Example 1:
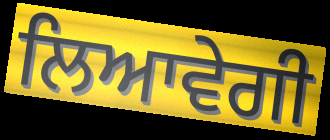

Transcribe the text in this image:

ਲਿਆਵੇਗੀ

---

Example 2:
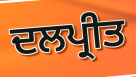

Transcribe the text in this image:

ਦਲਪ੍ਰੀਤ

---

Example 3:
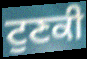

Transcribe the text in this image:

ਟੁਣਕੀ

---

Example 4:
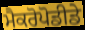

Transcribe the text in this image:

ਮੈਕਰੋਪੋਡੀਡੇ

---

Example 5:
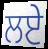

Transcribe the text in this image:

ਲਏੇ